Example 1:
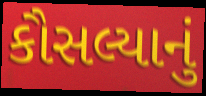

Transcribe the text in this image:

કૌસલ્યાનું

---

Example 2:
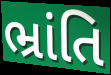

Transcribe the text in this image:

ભ્રાંતિ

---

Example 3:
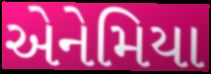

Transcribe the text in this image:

એનેમિયા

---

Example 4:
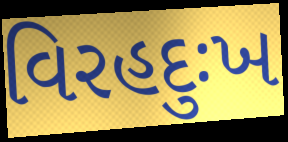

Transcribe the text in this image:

વિરહદુઃખ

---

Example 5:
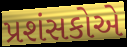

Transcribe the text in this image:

પ્રશંસકોએ